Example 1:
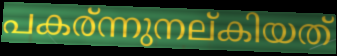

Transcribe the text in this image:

പകര്ന്നുനല്കിയത്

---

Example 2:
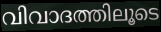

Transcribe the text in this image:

വിവാദത്തിലൂടെ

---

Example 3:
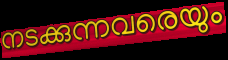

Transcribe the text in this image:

നടക്കുന്നവരെയും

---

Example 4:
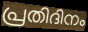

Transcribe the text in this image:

പ്രതിദിനം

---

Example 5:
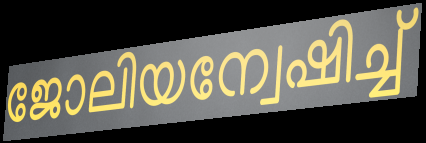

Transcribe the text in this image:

ജോലിയന്വേഷിച്ച്